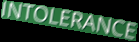
INTOLERANCE